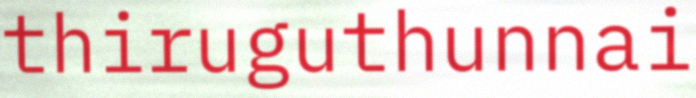
thiruguthunnai